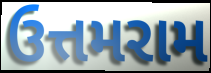
ઉત્તમરામ